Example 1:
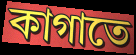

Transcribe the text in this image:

কাগাতে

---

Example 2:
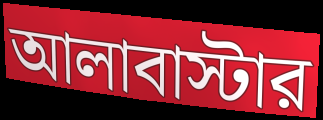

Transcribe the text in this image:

আলাবাস্টার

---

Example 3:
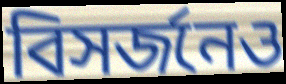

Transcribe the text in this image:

বিসর্জনেও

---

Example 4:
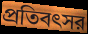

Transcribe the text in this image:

প্রতিবৎসর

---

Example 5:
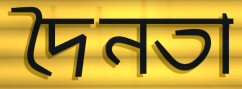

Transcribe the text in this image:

দৈনতা